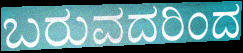
ಬರುವದರಿಂದ